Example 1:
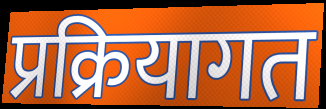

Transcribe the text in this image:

प्रक्रियागत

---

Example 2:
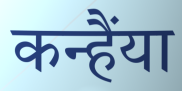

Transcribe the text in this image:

कन्हैंया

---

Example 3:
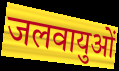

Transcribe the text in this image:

जलवायुओं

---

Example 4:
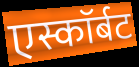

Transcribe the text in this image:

एस्कॉर्बट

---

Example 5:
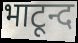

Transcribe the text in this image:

भाटून्द